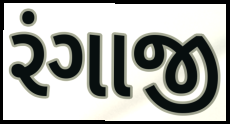
રંગાજી